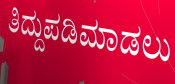
ತಿದ್ದುಪಡಿಮಾಡಲು